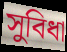
সুবিধা